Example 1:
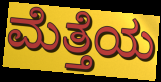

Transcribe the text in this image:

ಮೆತ್ತೆಯ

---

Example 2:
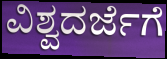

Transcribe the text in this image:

ವಿಶ್ವದರ್ಜೆಗೆ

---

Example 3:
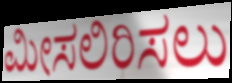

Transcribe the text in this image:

ಮೀಸಲಿರಿಸಲು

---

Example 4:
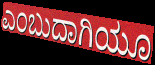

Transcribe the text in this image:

ಎಂಬುದಾಗಿಯೂ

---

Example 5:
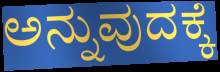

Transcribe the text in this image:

ಅನ್ನುವುದಕ್ಕೆ